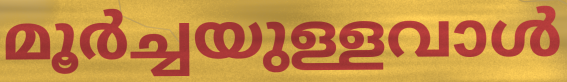
മൂർച്ചയുള്ളവാൾ